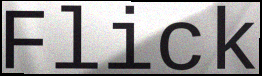
Flick